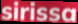
sirissa